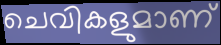
ചെവികളുമാണ്